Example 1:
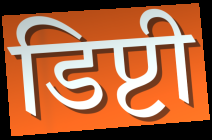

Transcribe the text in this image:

डिप्टी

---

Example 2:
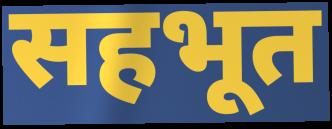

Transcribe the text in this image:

सहभूत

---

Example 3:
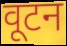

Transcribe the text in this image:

वूटन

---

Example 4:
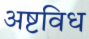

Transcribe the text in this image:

अष्टविध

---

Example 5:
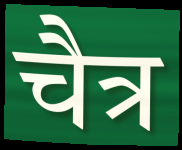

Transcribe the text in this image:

चैत्र